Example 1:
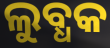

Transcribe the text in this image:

ଲୁବ୍ଧକ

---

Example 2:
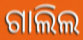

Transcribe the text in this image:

ଗାଲିଲ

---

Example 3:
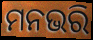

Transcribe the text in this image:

ମନଭରି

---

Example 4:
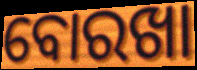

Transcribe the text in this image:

ବୋରଖା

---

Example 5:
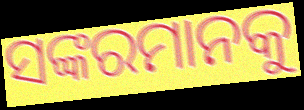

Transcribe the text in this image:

ସଙ୍କରମାନକୁ